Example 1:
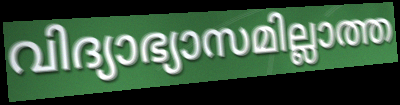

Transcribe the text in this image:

വിദ്യാഭ്യാസമില്ലാത്ത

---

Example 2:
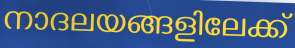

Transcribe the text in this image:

നാദലയങ്ങളിലേക്ക്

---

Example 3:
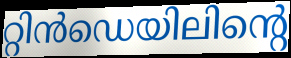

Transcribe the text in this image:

റ്റിൻഡെയിലിന്റെ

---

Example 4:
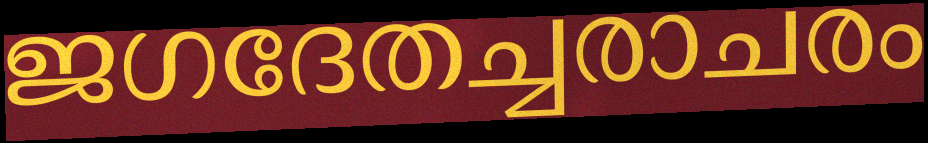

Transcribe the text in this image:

ജഗദേതച്ചരാചരം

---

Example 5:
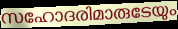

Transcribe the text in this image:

സഹോദരിമാരുടേയും